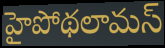
హైపోథలామస్